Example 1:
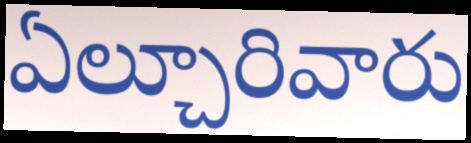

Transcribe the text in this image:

ఏల్చూరివారు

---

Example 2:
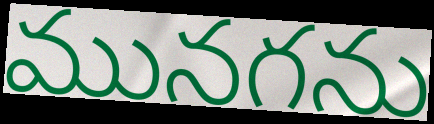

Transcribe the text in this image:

మునగను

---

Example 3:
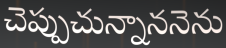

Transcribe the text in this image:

చెప్పుచున్నాననెను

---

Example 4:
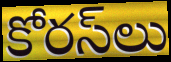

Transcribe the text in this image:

కోరస్‌లు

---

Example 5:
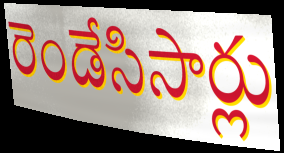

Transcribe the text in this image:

రెండేసిసార్లు